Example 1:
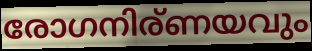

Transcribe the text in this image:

രോഗനിര്ണയവും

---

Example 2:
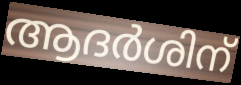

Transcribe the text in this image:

ആദർശിന്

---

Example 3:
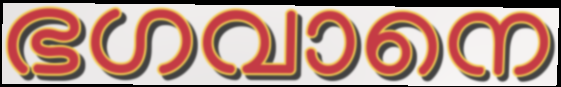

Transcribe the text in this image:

ഭഗവാനെ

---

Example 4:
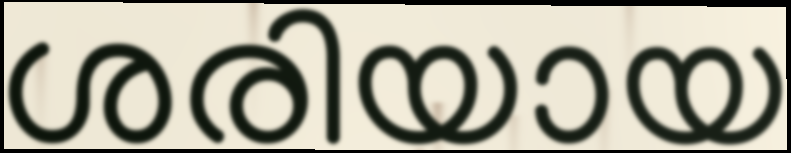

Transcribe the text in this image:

ശരിയായ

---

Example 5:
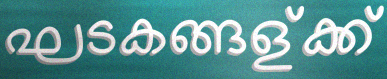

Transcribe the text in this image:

ഘടകങ്ങള്ക്ക്